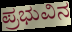
ಪ್ರಭುವಿನ